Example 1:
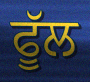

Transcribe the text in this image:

ਫੂੱਲ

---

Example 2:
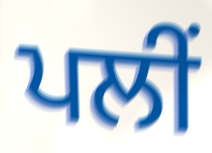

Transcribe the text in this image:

ਪਲੀਂ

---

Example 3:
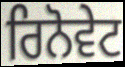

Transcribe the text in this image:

ਰਿਨੋਵੇਟ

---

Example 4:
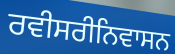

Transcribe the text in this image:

ਰਵੀਸਰੀਨਿਵਾਸਨ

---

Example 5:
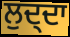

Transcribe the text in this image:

ਲੁਦ੍ਦਾ